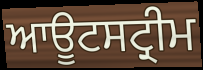
ਆਊਟਸਟ੍ਰੀਮ